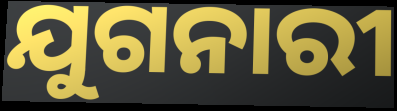
ଯୁଗନାରୀ